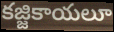
కజ్జికాయలూ